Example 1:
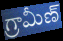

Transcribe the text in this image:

గ్రామీణ్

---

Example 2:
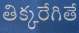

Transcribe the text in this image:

తిక్కరేగితే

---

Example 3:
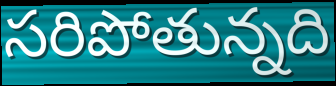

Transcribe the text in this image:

సరిపోతున్నది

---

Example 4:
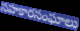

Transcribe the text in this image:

సహకారసంఘాలు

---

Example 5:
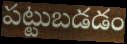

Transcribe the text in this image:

పట్టుబడడం